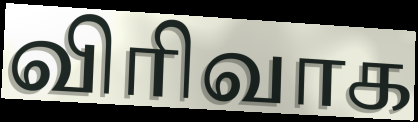
விரிவாக